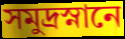
সমুদ্রস্নানে